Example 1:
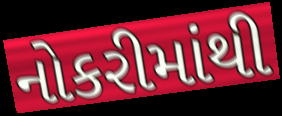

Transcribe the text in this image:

નોકરીમાંથી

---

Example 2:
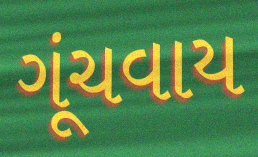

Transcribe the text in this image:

ગૂંચવાય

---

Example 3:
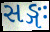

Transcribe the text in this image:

સઙ્ગઃ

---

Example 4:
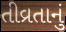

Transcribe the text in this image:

તીવ્રતાનું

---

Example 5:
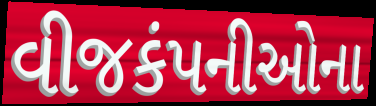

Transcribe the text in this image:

વીજકંપનીઓના